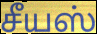
சீயஸ்